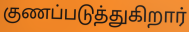
குணப்படுத்துகிறார்